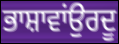
ਭਾਸ਼ਾਵਾਂਉਰਦੂ